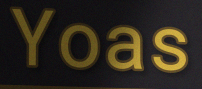
Yoas